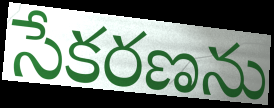
సేకరణను